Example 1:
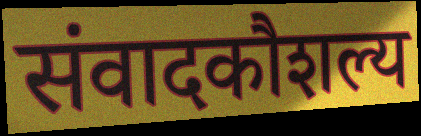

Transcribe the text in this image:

संवादकौशल्य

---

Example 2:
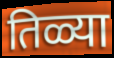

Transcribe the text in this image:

तिळ्या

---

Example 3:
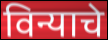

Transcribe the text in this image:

विन्याचे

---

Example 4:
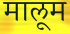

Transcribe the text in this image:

मालूम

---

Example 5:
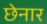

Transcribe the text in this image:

छेनार